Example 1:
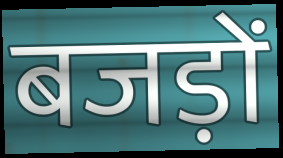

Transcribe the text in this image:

बजड़ों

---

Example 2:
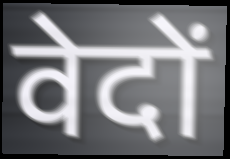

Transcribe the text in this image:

वेदों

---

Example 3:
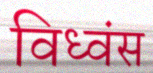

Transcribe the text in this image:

विध्वंस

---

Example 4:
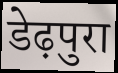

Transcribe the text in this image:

डेढ़पुरा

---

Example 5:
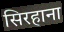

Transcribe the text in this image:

सिरहाना